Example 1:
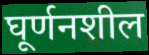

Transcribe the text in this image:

घूर्णनशील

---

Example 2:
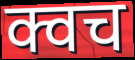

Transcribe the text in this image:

क्वच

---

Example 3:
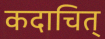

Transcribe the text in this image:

कदाचित्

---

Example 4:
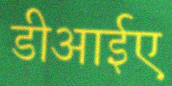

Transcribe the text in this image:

डीआईए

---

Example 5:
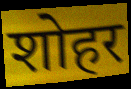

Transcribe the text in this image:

शोहर